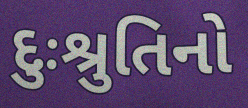
દુઃશ્રુતિનો